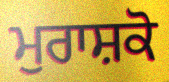
ਮੁਰਾਸ਼ਕੋ